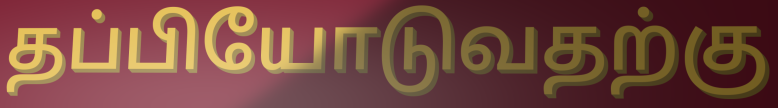
தப்பியோடுவதற்கு